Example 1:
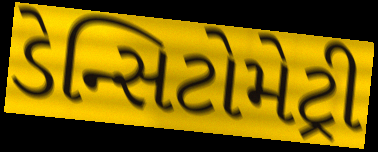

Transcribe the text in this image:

ડેન્સિટોમેટ્રી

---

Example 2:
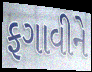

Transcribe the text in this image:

ફગાવીને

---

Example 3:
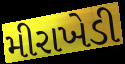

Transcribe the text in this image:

મીરાખેડી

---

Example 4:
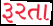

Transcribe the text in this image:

રૂરતા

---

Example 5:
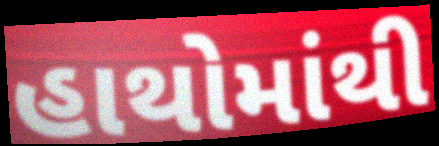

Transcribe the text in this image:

હાથોમાંથી